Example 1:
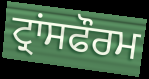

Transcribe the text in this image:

ਟ੍ਰਾਂਸਫੌਰਮ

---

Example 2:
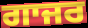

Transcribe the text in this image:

ਗਾਜਰ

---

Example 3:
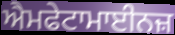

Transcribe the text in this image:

ਐਮਫੇਟਾਮਾਈਨਜ਼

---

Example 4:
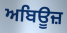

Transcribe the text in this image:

ਅਬਿਊਜ਼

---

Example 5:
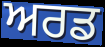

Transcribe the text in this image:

ਅਰਡ